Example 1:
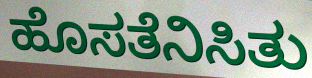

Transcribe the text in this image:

ಹೊಸತೆನಿಸಿತು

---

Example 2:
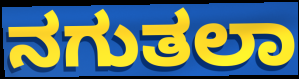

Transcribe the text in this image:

ನಗುತಲಾ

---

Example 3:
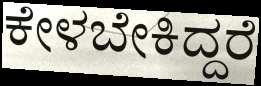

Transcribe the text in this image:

ಕೇಳಬೇಕಿದ್ದರೆ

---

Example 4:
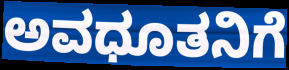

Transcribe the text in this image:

ಅವಧೂತನಿಗೆ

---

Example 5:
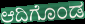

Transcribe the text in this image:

ಆದಿಗೊಂಡ